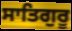
ਸਾਤਿਗੁਰੂ